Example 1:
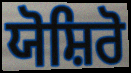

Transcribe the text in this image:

ਯੋਸ਼ਿਰੋ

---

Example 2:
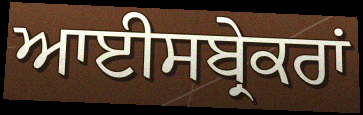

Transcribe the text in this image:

ਆਈਸਬ੍ਰੇਕਰਾਂ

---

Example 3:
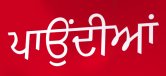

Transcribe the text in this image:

ਪਾਉਂਦੀਆਂ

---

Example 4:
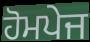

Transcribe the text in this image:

ਹੋਮਪੇਜ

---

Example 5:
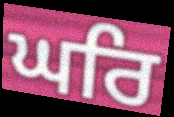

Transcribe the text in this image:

ਘਰਿ